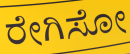
ರೇಗಿಸೋ